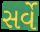
સર્વે